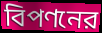
বিপণনের